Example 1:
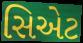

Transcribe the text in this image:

સિએટ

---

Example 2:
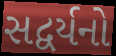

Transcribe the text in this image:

સદ્વર્યનો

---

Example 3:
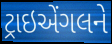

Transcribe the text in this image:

ટ્રાઇએંગલને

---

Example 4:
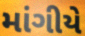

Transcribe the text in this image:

માંગીયે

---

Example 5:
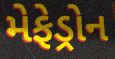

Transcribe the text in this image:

મેફેડ્રોન